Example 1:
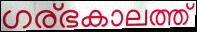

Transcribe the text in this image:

ഗര്ഭകാലത്ത്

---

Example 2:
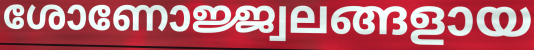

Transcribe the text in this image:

ശോണോജ്ജ്വലങ്ങളായ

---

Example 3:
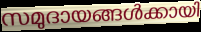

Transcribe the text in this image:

സമുദായങ്ങൾക്കായി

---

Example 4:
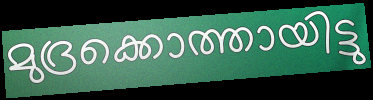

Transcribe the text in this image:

മുദ്രക്കൊത്തായിട്ടു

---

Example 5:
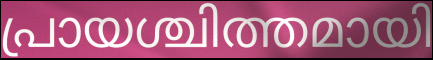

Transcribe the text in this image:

പ്രായശ്ചിത്തമായി